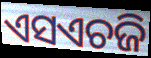
ଏସଏଚଜି